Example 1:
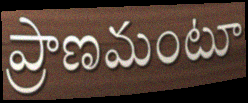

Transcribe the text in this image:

ప్రాణమంటూ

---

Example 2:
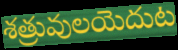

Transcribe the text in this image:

శత్రువులయెదుట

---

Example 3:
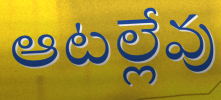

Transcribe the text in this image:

ఆటల్లేవు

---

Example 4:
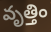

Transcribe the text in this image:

వృత్తిం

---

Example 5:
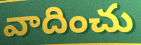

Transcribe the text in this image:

వాదించు